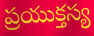
ప్రయుక్తస్య